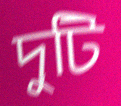
দুটি